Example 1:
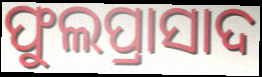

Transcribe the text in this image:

ଫୁଲପ୍ରାସାଦ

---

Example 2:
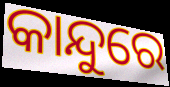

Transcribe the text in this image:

କାନ୍ଦୁରେ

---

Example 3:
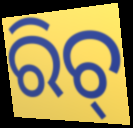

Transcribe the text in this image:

ରିଚ୍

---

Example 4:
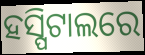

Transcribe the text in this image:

ହସ୍ପିଟାଲରେ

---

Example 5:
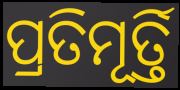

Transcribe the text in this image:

ପ୍ରତିମୂର୍ତ୍ତି